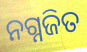
ନଗ୍ନଜିତ